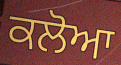
ਕਲੋਆ